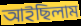
আইছিলাম